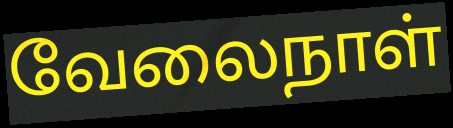
வேலைநாள்